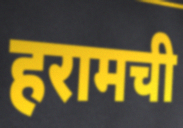
हरामची